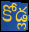
కోడ్ల